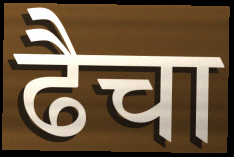
ढैचा